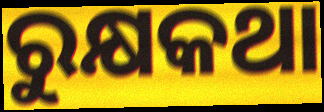
ରୁକ୍ଷକଥା